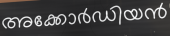
അക്കോർഡിയൻ